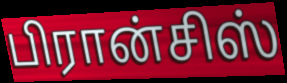
பிரான்சிஸ்